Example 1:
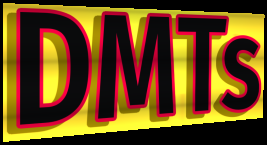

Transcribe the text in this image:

DMTs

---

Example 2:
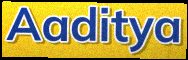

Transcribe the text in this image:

Aaditya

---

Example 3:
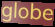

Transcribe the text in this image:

globe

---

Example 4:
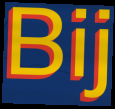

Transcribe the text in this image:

Bij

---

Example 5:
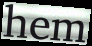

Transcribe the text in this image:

hem